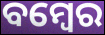
ବମ୍ୱେର